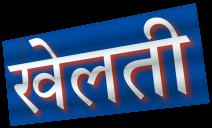
खेलती